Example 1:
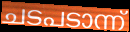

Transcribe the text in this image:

ചടപടാന്ന്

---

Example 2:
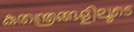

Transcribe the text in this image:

കുതന്ത്രങ്ങളിലൂടെ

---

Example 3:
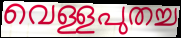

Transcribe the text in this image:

വെള്ളപുതച്ച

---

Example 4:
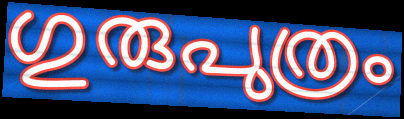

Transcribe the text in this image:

ഗുരുപുത്രം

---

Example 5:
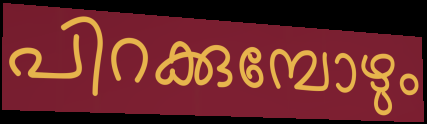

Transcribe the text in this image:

പിറക്കുമ്പോഴും